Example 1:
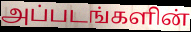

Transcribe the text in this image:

அப்படங்களின்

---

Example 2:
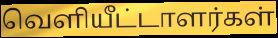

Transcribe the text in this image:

வெளியீட்டாளர்கள்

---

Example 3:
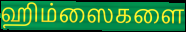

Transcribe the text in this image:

ஹிம்ஸைகளை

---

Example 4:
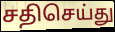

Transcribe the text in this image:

சதிசெய்து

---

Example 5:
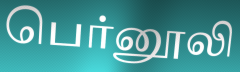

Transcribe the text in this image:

பெர்னூலி